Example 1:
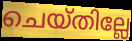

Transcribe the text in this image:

ചെയ്തില്ലേ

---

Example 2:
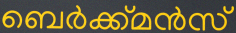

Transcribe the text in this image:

ബെർക്ക്മൻസ്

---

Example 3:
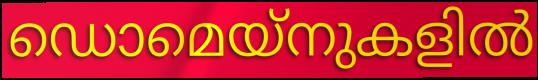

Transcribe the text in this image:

ഡൊമെയ്നുകളിൽ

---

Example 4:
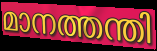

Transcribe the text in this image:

മാനത്തന്തി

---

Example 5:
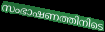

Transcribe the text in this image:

സംഭാഷണത്തിനിടെ